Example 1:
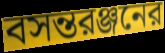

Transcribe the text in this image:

বসন্তরঞ্জনের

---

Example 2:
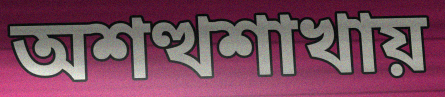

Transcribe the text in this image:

অশত্থশাখায়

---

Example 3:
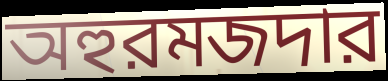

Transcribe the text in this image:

অহুরমজদার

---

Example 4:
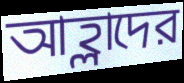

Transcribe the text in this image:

আহ্লাদের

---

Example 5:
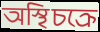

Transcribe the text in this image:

অস্থিচক্রে